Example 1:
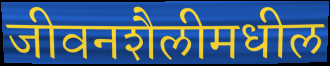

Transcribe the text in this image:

जीवनशैलीमधील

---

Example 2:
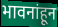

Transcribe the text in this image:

भावनांहून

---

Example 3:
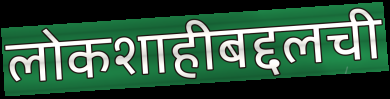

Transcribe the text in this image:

लोकशाहीबद्दलची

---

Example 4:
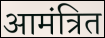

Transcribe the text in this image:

आमंत्रित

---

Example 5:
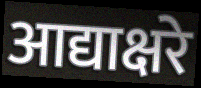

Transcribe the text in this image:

आद्याक्षरे